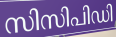
സിസിപിഡി